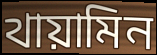
থায়ামিন